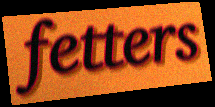
fetters